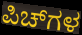
ಪಿಚ್‌ಗಳ